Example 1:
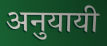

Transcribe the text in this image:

अनुयायी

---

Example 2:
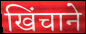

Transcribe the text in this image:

खिंचाने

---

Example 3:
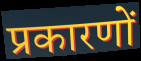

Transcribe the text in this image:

प्रकारणों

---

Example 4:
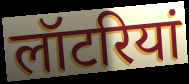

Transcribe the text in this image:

लॉटरियां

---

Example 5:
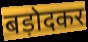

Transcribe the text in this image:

बड़ोदकर